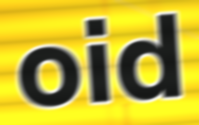
oid